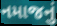
નમાજનું